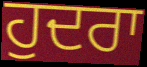
ਹੁਦਰਾ